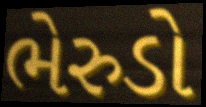
ભેરુડો